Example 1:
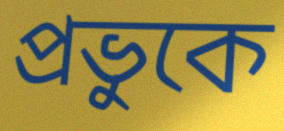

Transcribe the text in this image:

প্রভুকে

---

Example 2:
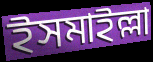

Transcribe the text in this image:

ইসমাইল্লা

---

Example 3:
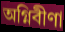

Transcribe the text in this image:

অগ্নিবীণা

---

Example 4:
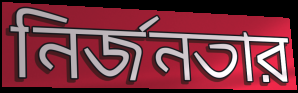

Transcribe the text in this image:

নির্জনতার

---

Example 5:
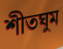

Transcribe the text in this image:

শীতঘুম